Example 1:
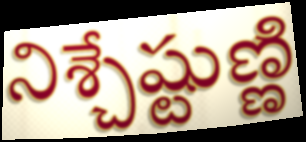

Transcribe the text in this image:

నిశ్చేష్టుణ్ణి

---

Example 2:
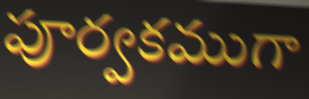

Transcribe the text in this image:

పూర్వకముగా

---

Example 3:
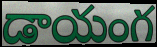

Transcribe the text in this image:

డాయంగ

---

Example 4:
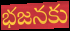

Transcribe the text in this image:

భజనకు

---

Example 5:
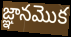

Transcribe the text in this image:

జ్ఞానమొక